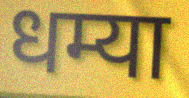
धम्या